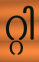
റ്റി